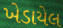
ખેડાયેલ